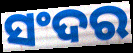
ସଂଦର